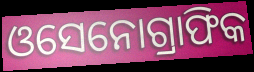
ଓସେନୋଗ୍ରାଫିକ